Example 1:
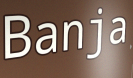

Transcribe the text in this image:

Banja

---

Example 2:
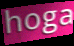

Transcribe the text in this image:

hoga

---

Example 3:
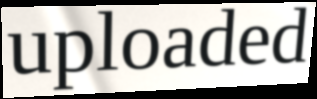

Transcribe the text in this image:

uploaded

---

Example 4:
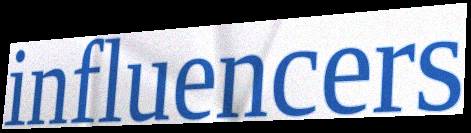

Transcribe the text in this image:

influencers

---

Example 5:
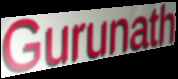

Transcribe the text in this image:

Gurunath